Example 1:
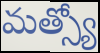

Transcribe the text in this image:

మత్స్యో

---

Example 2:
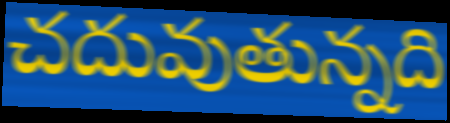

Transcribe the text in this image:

చదువుతున్నది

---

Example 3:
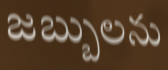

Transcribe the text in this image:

జబ్బులను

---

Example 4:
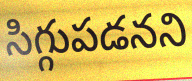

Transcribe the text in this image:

సిగ్గుపడనని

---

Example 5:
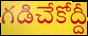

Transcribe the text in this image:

గడిచేకోద్దీ